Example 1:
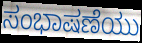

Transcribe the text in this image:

ಸಂಭಾಷಣೆಯು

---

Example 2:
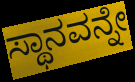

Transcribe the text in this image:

ಸ್ಥಾನವನ್ನೇ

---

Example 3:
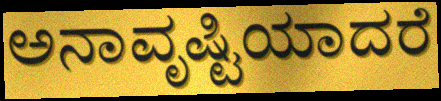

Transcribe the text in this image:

ಅನಾವೃಷ್ಟಿಯಾದರೆ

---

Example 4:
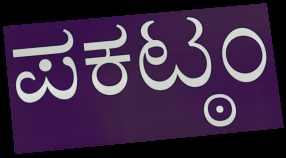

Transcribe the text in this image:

ಪಕಟ್ಠಂ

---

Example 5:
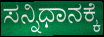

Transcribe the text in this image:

ಸನ್ನಿಧಾನಕ್ಕೆ